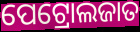
ପେଟ୍ରୋଲଜାତ